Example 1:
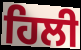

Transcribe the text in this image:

ਹਿਲੀ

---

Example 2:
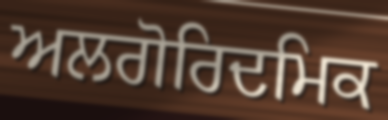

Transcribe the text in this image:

ਅਲਗੋਰਿਦਮਿਕ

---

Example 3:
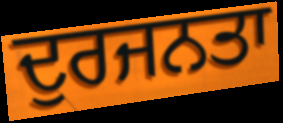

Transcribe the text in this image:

ਦੁਰਜਨਤਾ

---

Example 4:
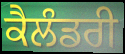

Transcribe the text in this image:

ਕੈਲੰਡਰੀ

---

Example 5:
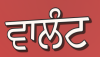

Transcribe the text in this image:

ਵਾਲੰਟ